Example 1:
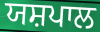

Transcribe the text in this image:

ਯਸ਼ਪਾਲ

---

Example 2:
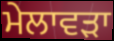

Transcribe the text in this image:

ਮੇਲਾਵੜਾ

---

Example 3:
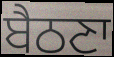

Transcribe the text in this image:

ਬੈਠਣਾ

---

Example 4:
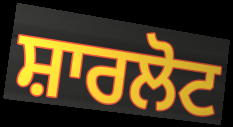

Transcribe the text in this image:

ਸ਼ਾਰਲੋਟ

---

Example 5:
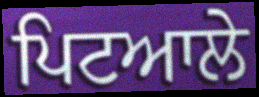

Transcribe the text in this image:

ਪਿਟਆਲੇ